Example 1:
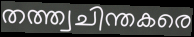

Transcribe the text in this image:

തത്ത്വചിന്തകരെ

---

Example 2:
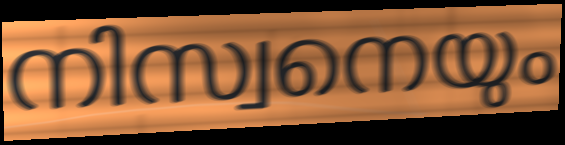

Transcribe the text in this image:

നിസ്വനെയും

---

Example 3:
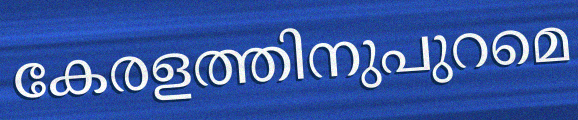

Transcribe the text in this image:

കേരളത്തിനുപുറമെ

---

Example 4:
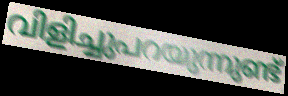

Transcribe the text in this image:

വിളിച്ചുപറയുന്നുണ്ട്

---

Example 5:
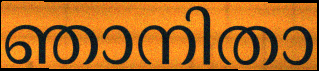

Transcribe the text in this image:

ഞാനിതാ